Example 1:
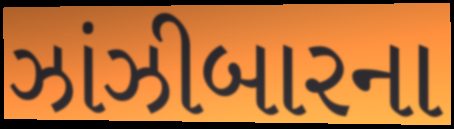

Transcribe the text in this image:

ઝાંઝીબારના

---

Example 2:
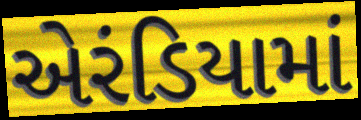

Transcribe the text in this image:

એરંડિયામાં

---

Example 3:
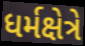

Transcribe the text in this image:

ધર્મક્ષેત્રે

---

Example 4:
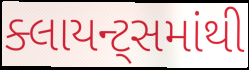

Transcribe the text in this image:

ક્લાયન્ટ્સમાંથી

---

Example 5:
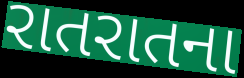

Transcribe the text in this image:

રાતરાતના